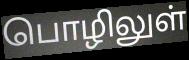
பொழிலுள்